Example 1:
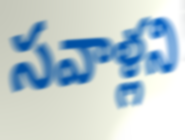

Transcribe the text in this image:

సవాళ్లని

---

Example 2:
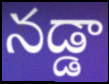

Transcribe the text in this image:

నడ్డా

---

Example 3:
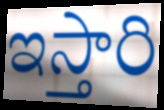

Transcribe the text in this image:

ఇస్తారి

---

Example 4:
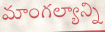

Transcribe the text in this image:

మాంగల్యాన్ని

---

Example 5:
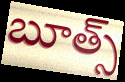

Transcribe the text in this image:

బూత్స్